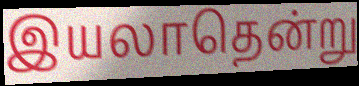
இயலாதென்று